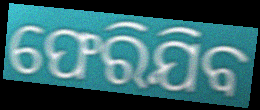
ଫେରିଯିବ